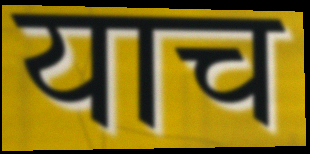
याच